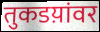
तुकडय़ांवर